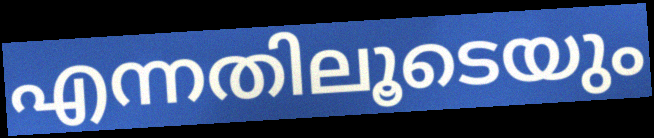
എന്നതിലൂടെയും